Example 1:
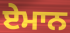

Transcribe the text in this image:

ਏਮਾਨ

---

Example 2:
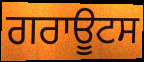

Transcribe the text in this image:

ਗਰਾਊਟਸ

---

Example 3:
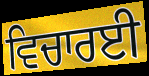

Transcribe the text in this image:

ਵਿਚਾਰਈ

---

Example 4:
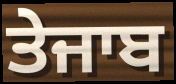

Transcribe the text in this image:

ਤੇਜਾਬ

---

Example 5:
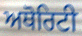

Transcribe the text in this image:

ਅਥੋਰਿਟੀ